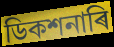
ডিকশনাৰি